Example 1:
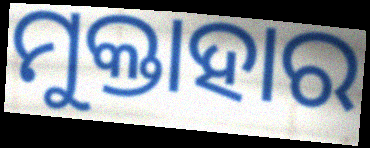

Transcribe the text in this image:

ମୁକ୍ତାହାର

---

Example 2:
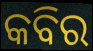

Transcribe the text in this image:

କବିର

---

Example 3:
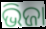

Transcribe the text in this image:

ଭିଜା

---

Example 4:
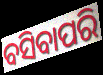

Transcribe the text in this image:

ବସିବାପରି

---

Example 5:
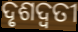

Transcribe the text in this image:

ଦୃଶଦ୍ୱତୀ